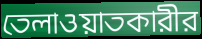
তেলাওয়াতকারীর